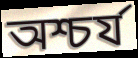
অশ্চর্য